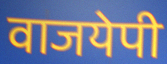
वाजयेपी